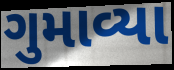
ગુમાવ્યા